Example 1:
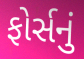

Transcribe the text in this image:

ફોર્સનું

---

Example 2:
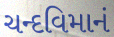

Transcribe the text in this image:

ચન્દવિમાનં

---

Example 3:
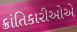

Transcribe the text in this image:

ક્રાંતિકારીઓએ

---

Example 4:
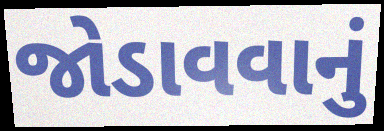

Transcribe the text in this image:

જોડાવવાનું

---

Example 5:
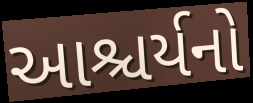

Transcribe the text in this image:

આશ્ચર્યનો